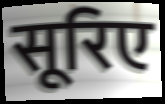
सूरिए